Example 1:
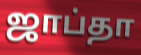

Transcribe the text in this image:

ஜாப்தா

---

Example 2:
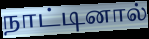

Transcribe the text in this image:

நாட்டினால்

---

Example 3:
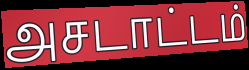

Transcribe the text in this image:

அசடாட்டம்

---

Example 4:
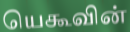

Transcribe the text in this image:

யெகூவின்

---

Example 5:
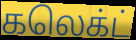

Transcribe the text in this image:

கலெக்ட்